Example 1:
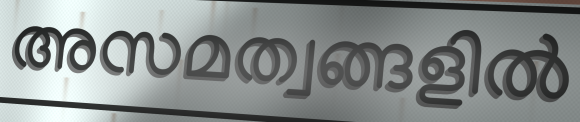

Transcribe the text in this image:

അസമത്വങ്ങളിൽ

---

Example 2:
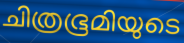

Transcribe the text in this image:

ചിത്രഭൂമിയുടെ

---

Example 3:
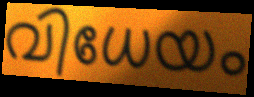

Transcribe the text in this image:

വിധേയം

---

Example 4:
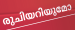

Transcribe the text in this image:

രുചിയറിയുമോ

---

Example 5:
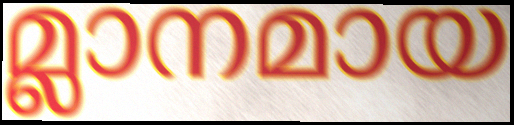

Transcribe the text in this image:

മ്ലാനമായ